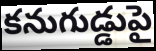
కనుగుడ్డుపై